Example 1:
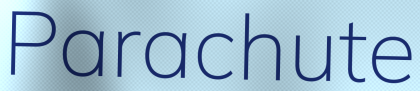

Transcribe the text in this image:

Parachute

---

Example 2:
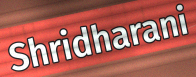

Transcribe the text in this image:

Shridharani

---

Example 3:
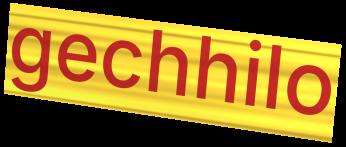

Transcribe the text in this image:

gechhilo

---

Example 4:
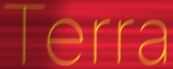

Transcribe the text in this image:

Terra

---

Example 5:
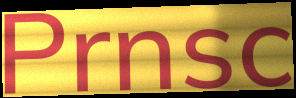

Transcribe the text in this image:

Prnsc